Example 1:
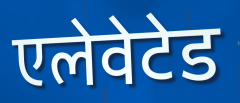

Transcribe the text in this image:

एलेवेटेड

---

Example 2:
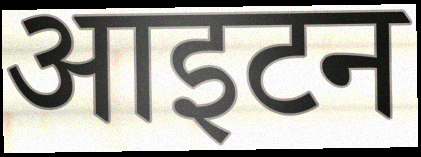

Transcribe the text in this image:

आइटन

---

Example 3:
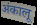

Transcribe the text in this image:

अंकालू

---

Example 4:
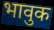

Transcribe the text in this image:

भावुक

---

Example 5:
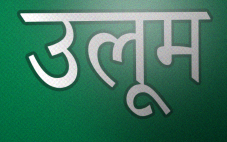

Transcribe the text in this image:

उलूम